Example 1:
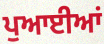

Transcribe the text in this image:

ਪੁਆਈਆਂ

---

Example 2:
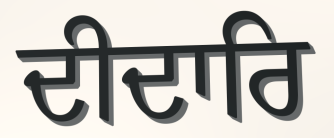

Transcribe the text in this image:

ਦੀਦਾਰਿ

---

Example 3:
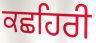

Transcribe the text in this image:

ਕਛਹਿਰੀ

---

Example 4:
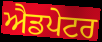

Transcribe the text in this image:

ਐਡਪੇਟਰ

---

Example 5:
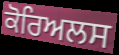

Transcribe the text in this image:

ਕੋਰਿਅਲਸ